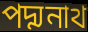
পদ্মনাথ